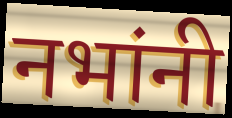
नभांनी